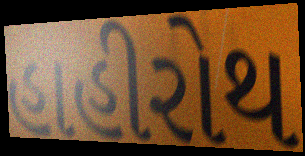
હાહીરોથ